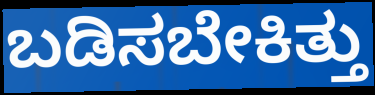
ಬಡಿಸಬೇಕಿತ್ತು